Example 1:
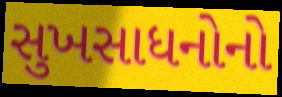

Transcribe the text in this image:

સુખસાધનોનો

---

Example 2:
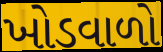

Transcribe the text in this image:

ખોડવાળો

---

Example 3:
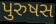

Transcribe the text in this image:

પુરુષસ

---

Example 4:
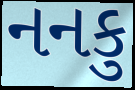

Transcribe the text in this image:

નનકુ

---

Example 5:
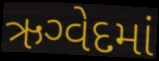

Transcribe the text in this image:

ઋગ્વેદમાં